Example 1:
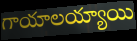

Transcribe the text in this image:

గాయాలయ్యాయి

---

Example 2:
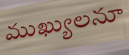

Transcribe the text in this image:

ముఖ్యులనూ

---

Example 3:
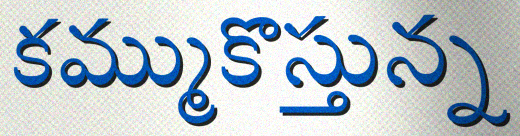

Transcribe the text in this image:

కమ్ముకొస్తున్న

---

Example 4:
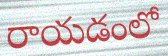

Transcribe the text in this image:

రాయడంలో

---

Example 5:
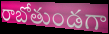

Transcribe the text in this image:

రాబోతుండగా